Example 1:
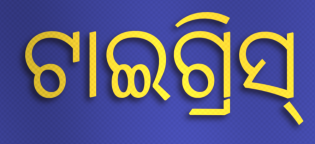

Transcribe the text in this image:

ଟାଇଗ୍ରିସ୍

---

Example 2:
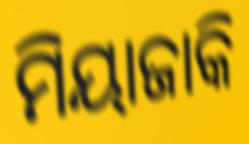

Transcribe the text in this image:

ମିୟାଜାକି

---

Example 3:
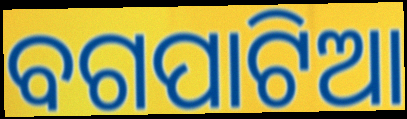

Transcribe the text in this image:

ବଗପାଟିଆ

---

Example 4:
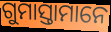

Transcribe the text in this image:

ଗୁମାସ୍ତାମାନେ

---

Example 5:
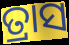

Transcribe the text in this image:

ତ୍ରାସ